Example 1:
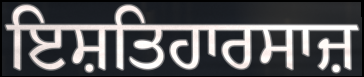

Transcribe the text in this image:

ਇਸ਼ਤਿਹਾਰਸਾਜ਼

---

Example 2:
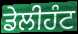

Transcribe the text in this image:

ਡੇਲੀਹੰਟ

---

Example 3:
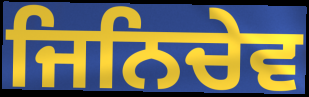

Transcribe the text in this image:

ਜਿਨਿਚੇਵ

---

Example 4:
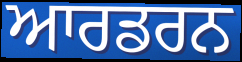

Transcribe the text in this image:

ਆਰਡਰਨ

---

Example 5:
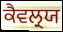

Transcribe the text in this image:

ਕੈਵਲ੍ਰਯ